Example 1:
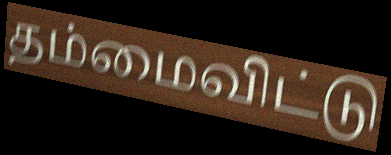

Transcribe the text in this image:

தம்மைவிட்டு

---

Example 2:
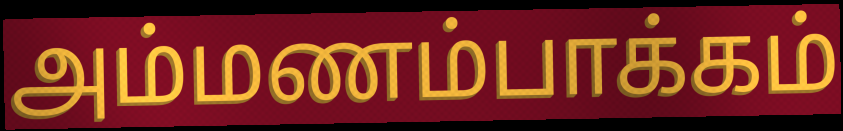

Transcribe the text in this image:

அம்மணம்பாக்கம்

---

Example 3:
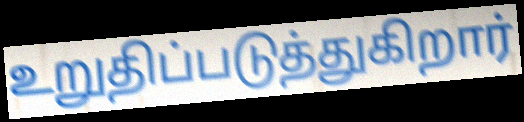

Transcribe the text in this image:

உறுதிப்படுத்துகிறார்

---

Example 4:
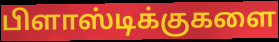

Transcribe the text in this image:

பிளாஸ்டிக்குகளை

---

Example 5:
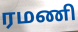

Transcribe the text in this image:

ரமணி